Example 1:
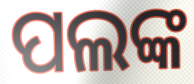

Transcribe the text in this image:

ପଲଙ୍କ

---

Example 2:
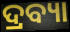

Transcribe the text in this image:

ଦ୍ରବ୍ୟା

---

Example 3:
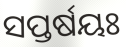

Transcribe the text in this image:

ସପ୍ତର୍ଷୟଃ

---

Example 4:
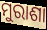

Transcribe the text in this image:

ମୁରାଶା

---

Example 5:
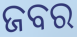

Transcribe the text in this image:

ଜବର